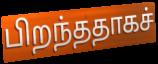
பிறந்ததாகச்